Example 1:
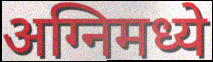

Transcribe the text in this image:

अग्निमध्ये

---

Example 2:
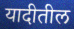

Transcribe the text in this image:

यादीतील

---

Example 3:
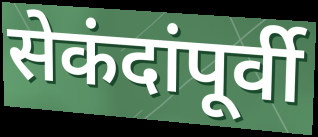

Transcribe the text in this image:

सेकंदांपूर्वी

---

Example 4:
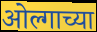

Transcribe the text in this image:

ओल्गाच्या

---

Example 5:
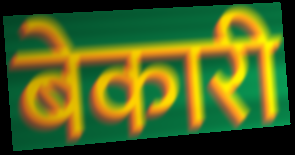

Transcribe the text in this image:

बेकारी